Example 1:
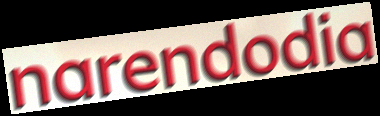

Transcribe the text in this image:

narendodia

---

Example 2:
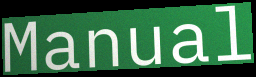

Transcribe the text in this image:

Manual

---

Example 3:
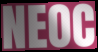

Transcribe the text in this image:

NEOC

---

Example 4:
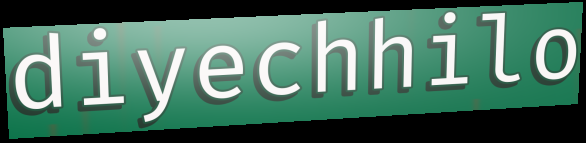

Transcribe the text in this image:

diyechhilo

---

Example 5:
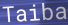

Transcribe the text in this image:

Taiba